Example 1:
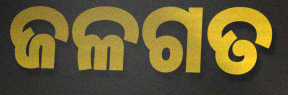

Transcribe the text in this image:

ଜଳଗତ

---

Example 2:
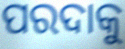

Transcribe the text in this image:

ପରଦାକୁ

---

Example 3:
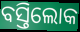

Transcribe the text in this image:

ବସ୍ତିଲୋକ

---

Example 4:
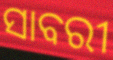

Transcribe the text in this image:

ସାବରୀ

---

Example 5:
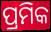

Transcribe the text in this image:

ପ୍ରମିକ